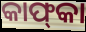
କାଫ୍‌କା